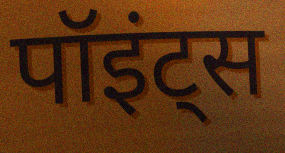
पॉइंट्स